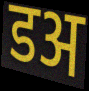
डअ